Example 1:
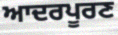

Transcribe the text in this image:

ਆਦਰਪੂਰਣ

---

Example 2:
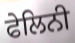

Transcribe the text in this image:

ਫੇਲਿਨੀ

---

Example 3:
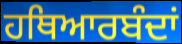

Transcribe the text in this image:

ਹਥਿਆਰਬੰਦਾਂ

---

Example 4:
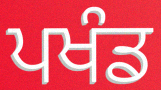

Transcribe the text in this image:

ਪਖੰਡ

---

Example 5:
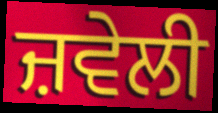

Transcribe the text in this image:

ਜ਼ਵੇਲੀ